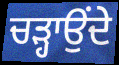
ਚੜ੍ਹਾਉਂਦੇ